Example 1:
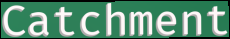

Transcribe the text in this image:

Catchment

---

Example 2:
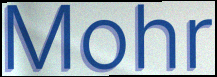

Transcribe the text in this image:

Mohr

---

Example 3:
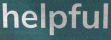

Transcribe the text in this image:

helpful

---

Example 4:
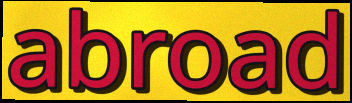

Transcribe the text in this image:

abroad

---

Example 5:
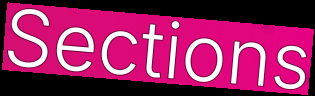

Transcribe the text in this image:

Sections